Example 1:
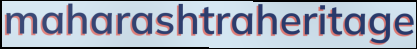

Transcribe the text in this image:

maharashtraheritage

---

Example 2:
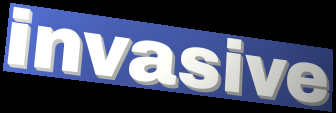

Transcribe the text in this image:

invasive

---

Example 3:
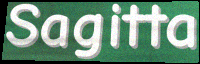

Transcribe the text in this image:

Sagitta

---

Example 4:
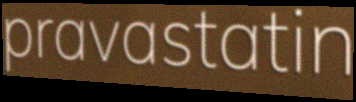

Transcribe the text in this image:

pravastatin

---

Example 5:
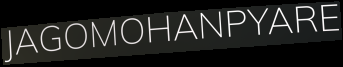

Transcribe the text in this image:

JAGOMOHANPYARE